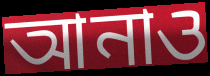
আনাও